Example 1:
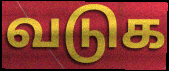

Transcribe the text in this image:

வடுக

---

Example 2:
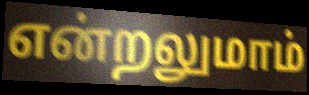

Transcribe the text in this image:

என்றலுமாம்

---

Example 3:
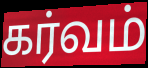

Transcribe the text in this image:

கர்வம்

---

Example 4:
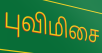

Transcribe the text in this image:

புவிமிசை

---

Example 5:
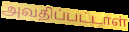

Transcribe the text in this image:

அவதிப்பட்டாள்